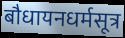
बौधायनधर्मसूत्र